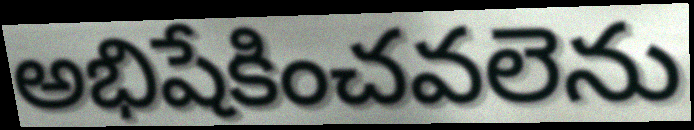
అభిషేకించవలెను